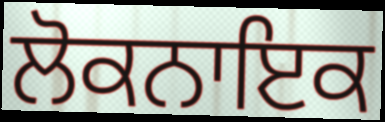
ਲੋਕਨਾਇਕ